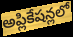
అప్లికేషన్లలో